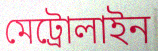
মেট্রোলাইন